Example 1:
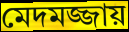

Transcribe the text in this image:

মেদমজ্জায়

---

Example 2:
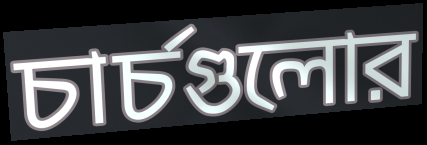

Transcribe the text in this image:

চার্চগুলোর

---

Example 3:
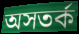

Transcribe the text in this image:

অসতর্ক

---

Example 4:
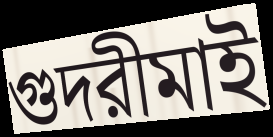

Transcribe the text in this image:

গুদরীমাই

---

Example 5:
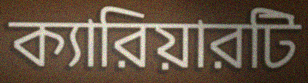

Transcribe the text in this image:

ক্যারিয়ারটি